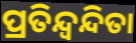
ପ୍ରତିନ୍ଦ୍ବନ୍ଦିତା